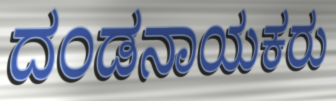
ದಂಡನಾಯಕರು